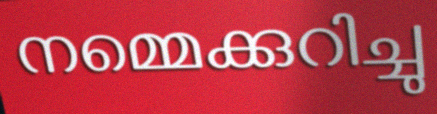
നമ്മെക്കുറിച്ചു